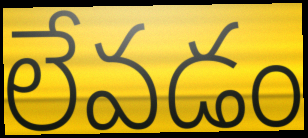
లేవడం